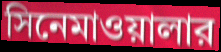
সিনেমাওয়ালার